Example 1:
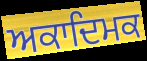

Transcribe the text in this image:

ਅਕਾਦਿਮਕ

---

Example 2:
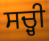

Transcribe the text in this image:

ਸਚ੍ਚੀ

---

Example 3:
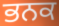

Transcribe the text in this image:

ਭਨਕ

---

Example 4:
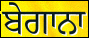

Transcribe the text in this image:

ਬੇਗਾਨਾ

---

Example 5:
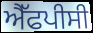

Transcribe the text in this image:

ਐੱਫਪੀਸੀ